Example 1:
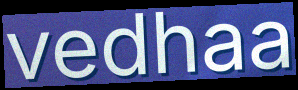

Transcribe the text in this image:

vedhaa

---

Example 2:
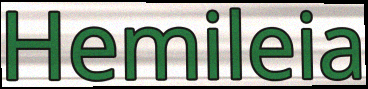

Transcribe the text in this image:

Hemileia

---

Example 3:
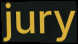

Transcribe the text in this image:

jury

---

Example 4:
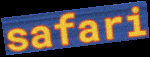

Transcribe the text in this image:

safari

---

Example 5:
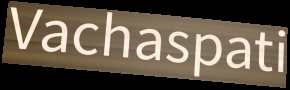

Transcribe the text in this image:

Vachaspati